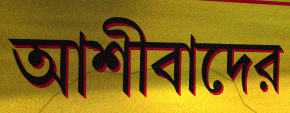
আশীবাদের